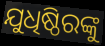
ଯୁଧିଷ୍ଠିରଙ୍କୁ